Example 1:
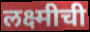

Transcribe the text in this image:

लक्ष्मीची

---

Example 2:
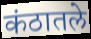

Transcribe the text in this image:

कंठातले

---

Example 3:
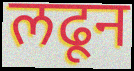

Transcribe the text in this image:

लढून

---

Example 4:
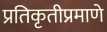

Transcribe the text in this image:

प्रतिकृतीप्रमाणे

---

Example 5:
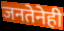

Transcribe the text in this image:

जनतेनेही